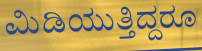
ಮಿಡಿಯುತ್ತಿದ್ದರೂ